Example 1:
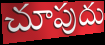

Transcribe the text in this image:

చూపుదు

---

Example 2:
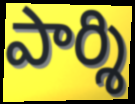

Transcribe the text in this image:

పార్శి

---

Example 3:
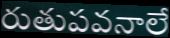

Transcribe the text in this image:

రుతుపవనాలే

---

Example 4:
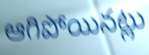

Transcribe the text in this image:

ఆగిపోయినట్లు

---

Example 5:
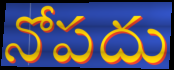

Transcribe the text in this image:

నోపదు